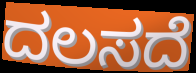
ದಲಸದೆ